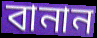
বানান